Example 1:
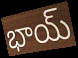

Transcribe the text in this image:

భాయ్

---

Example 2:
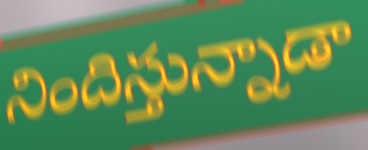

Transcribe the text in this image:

నిందిస్తున్నాడా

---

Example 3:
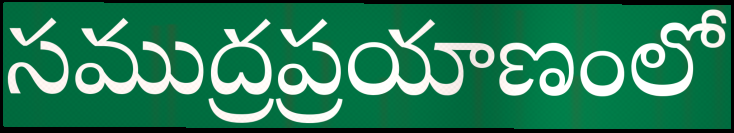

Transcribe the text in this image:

సముద్రప్రయాణంలో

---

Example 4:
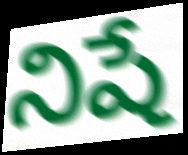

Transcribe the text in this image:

నిషే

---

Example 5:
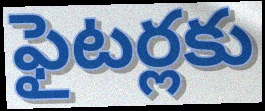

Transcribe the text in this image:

ఫైటర్లకు